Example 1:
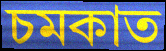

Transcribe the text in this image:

চমকাত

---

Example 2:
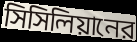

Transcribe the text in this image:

সিসিলিয়ানের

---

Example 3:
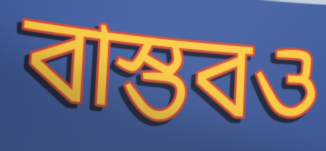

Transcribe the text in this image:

বাস্তবও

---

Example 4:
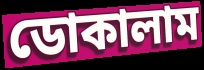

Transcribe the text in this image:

ডোকালাম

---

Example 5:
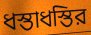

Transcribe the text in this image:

ধস্তাধস্তির